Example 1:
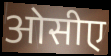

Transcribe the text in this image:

ओसीए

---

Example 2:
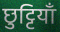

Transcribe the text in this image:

छुट्टियाँ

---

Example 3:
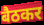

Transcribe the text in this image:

बैठकर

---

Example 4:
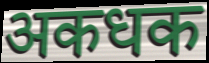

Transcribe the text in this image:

अकधक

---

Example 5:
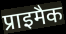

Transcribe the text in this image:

प्राइमैक